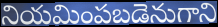
నియమింపబడెనుగాని